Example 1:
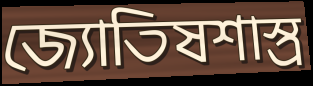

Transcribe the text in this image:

জ্যোতিষশাস্ত্র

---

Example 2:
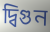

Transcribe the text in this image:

দ্বিগুন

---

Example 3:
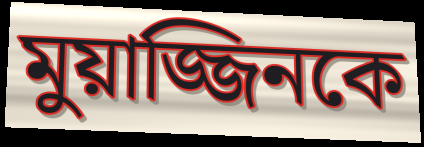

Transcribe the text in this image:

মুয়াজ্জিনকে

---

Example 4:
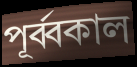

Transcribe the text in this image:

পূর্ব্বকাল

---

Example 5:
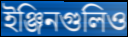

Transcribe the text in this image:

ইঞ্জিনগুলিও